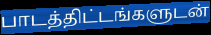
பாடத்திட்டங்களுடன்